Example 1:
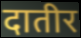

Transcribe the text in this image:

दातीर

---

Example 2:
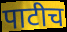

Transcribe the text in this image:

पाटीच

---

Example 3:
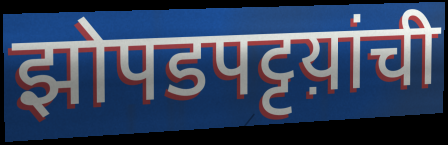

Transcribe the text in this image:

झोपडपट्टय़ांची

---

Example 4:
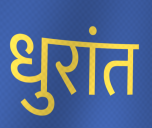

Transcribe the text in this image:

धुरांत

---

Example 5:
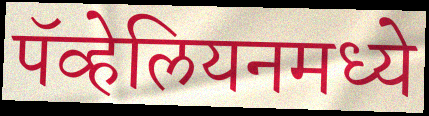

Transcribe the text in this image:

पॅव्हेलियनमध्ये